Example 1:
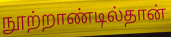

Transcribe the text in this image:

நூற்றாண்டில்தான்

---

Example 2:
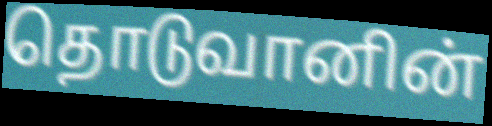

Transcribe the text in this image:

தொடுவானின்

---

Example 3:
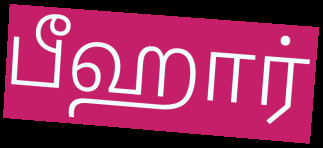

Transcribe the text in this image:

பீஹார்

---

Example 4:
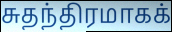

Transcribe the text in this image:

சுதந்திரமாகக்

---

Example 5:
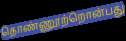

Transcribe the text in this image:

தொண்ணூற்றொன்பது